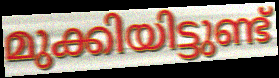
മുക്കിയിട്ടുണ്ട്